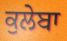
ਕੁਲੇਬਾ